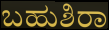
ಬಹುಶಿರಾ